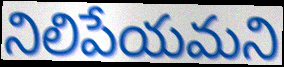
నిలిపేయమని